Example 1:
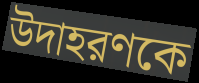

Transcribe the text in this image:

উদাহরণকে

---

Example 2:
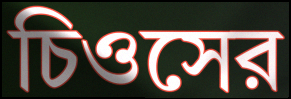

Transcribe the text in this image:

চিওসের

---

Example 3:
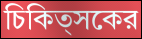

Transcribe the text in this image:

চিকিত্সকের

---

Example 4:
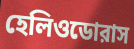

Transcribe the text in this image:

হেলিওডোরাস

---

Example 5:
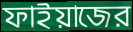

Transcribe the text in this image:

ফাইয়াজের